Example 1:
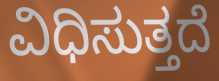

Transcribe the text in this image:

ವಿಧಿಸುತ್ತದೆ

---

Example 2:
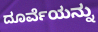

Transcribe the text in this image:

ದೂರ್ವೆಯನ್ನು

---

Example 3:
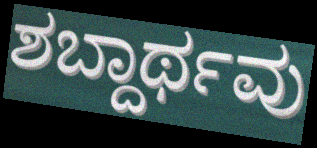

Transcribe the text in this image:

ಶಬ್ದಾರ್ಥವು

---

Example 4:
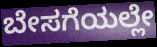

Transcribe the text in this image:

ಬೇಸಗೆಯಲ್ಲೇ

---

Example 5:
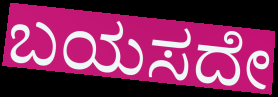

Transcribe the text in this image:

ಬಯಸದೇ